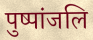
पुष्पांजलि